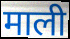
माली